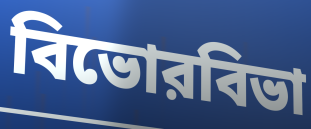
বিভোরবিভা